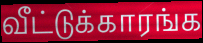
வீட்டுக்காரங்க